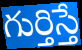
గుర్తిస్తే